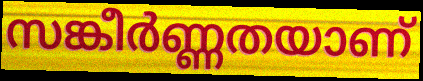
സങ്കീർണ്ണതയാണ്